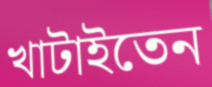
খাটাইতেন